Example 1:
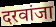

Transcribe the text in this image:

दरवांजा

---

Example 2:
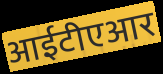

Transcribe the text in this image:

आईटीएआर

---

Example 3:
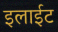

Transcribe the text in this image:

इलाईट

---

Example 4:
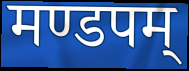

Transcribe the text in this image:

मण्डपम्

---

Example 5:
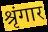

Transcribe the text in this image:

श्रृंगार